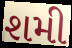
શમી